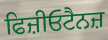
ਫਿਜ਼ੀਓਟੈਨਜ਼